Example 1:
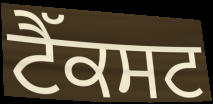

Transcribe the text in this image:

ਟੈੱਕਸਟ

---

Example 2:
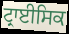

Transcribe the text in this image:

ਟ੍ਰਾਈਸਿਕ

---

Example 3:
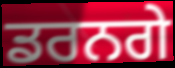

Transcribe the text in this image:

ਡਰਨਗੇ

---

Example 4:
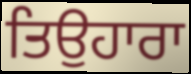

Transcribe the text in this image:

ਤਿਉਹਾਰਾ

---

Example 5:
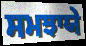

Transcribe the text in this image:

ਸਮਝਾਯੇ